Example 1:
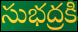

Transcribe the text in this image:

సుభద్రకి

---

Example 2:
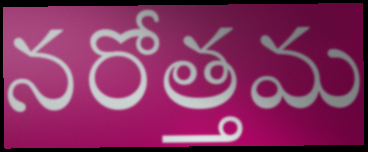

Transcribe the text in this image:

నరోత్తమ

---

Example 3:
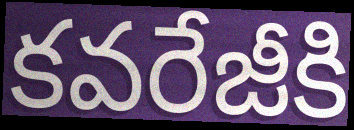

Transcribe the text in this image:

కవరేజీకి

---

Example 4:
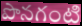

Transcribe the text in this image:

పొనగంటి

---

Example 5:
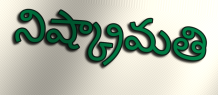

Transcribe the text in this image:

నిష్క్రామతి